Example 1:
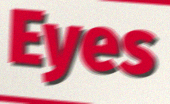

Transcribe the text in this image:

Eyes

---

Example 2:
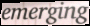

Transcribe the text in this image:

emerging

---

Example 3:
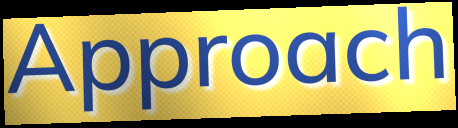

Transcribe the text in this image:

Approach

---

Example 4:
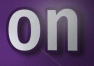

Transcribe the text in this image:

on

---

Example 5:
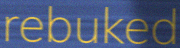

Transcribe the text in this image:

rebuked